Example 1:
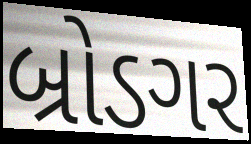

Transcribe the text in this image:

બ્રોડગર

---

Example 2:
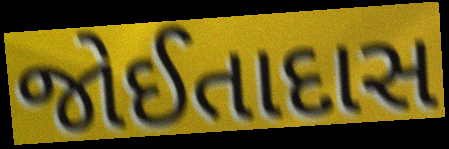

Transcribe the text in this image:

જોઈતાદાસ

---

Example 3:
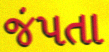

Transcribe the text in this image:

જંપતા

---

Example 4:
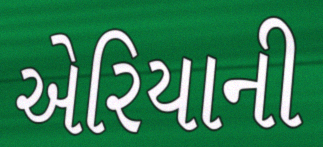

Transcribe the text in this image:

એરિયાની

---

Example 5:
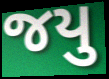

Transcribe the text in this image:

જયુ